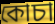
কোচা